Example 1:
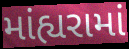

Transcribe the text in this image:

માંહ્યરામાં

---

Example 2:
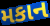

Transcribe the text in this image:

મકાન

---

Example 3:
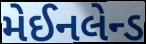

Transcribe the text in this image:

મેઈનલેન્ડ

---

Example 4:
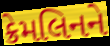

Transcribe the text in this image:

ક્રેમલિનને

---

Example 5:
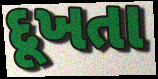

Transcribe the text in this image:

દૂખતા